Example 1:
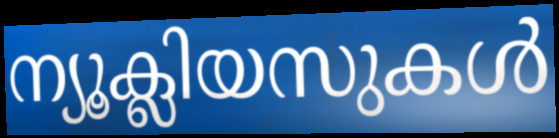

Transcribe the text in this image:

ന്യൂക്ലിയസുകൾ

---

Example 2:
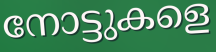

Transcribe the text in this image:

നോട്ടുകളെ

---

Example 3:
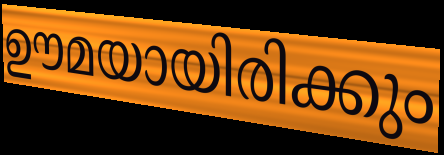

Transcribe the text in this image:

ഊമയായിരിക്കും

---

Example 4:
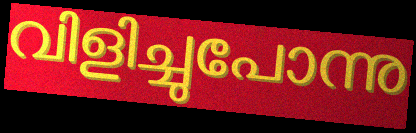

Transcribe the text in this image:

വിളിച്ചുപോന്നു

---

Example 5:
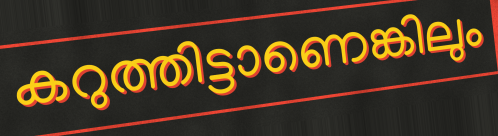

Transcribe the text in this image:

കറുത്തിട്ടാണെങ്കിലും